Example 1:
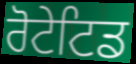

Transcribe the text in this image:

ਰੋਟੇਟਿਡ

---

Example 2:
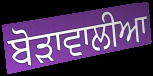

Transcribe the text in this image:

ਬੋੜਾਵਾਲੀਆ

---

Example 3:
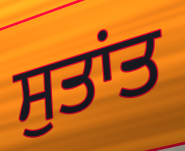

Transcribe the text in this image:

ਸੁਤਾਂਤ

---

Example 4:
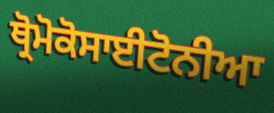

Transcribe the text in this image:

ਥ੍ਰੋਮੋਕੋਸਾਈਟੋਨੀਆ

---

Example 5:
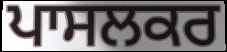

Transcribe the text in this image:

ਪਾਸਲਕਰ